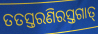
ତତସ୍ତରଣିରସ୍ତଗାତ୍